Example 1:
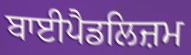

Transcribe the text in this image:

ਬਾਈਪੈਡਲਿਜ਼ਮ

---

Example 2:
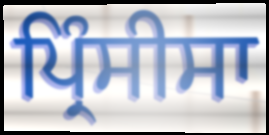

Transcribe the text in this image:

ਪ੍ਰਿੰਸੀਸਾ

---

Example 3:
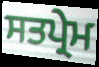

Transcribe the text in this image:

ਸਤਪ੍ਰੇਮ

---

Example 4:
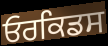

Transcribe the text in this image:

ਓਰਕਿਡਸ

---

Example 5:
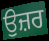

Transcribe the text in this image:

ਉਜ਼ਰ